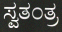
ಸ್ವತಂತ್ರ